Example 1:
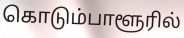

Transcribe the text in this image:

கொடும்பாளூரில்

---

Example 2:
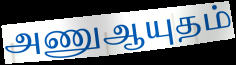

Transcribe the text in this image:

அணுஆயுதம்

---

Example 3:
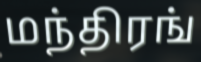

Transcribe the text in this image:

மந்திரங்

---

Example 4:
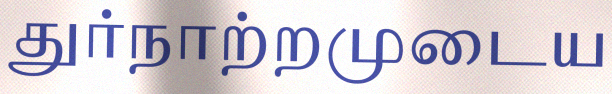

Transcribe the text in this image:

துர்நாற்றமுடைய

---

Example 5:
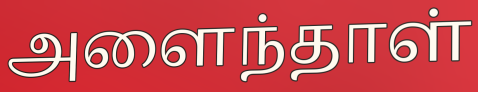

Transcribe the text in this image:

அளைந்தாள்